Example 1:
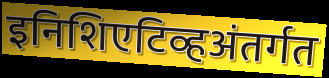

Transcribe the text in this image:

इनिशिएटिव्हअंतर्गत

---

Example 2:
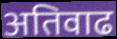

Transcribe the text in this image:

अतिवाढ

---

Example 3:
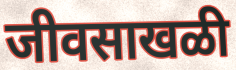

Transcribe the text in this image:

जीवसाखळी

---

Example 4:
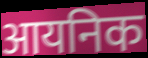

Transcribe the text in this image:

आयनिक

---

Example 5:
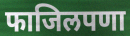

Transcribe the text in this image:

फाजिलपणा